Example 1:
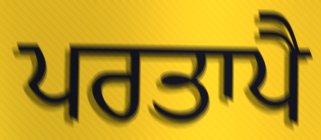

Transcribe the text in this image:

ਪਰਤਾਪੈ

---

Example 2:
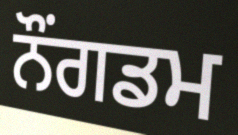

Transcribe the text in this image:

ਨੌਂਗਡਮ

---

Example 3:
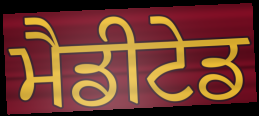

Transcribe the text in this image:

ਮੈਡੀਟੇਡ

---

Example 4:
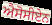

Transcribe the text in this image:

ਐਸੋਸੀਏਨ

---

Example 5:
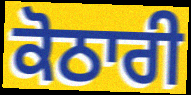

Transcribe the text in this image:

ਕੋਠਾਰੀ